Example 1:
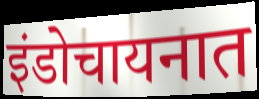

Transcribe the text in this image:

इंडोचायनात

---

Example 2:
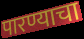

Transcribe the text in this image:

पारण्याचा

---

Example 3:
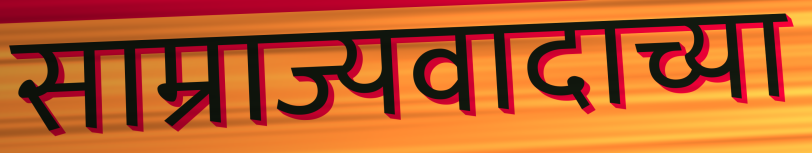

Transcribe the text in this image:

साम्राज्यवादाच्या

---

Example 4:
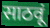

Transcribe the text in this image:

साठवूं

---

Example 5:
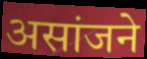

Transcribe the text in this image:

असांजने